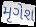
મૃગેશ